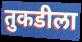
तुकडीला